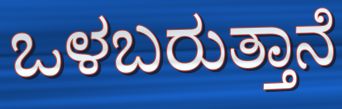
ಒಳಬರುತ್ತಾನೆ